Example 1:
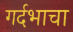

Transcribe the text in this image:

गर्दभाचा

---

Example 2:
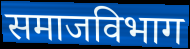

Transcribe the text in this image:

समाजविभाग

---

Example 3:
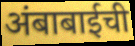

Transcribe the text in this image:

अंबाबाईची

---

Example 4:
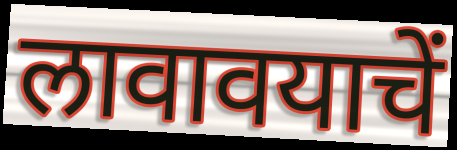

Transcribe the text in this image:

लावावयाचें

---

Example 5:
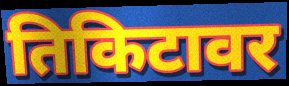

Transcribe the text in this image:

तिकिटावर